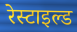
रेस्टाइल्ड